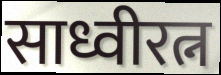
साध्वीरत्न